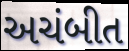
અચંબીત